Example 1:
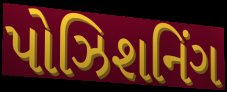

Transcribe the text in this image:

પોઝિશનિંગ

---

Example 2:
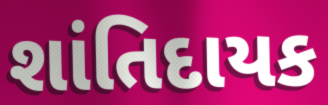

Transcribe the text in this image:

શાંતિદાયક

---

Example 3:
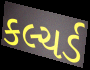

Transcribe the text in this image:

કલ્ચર્ડ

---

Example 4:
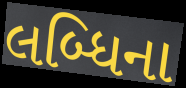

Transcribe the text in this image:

લબ્ધિના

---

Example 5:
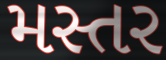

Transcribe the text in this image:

મસ્તર